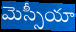
మెస్సీయా